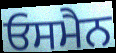
ਓਸਮੈਨ